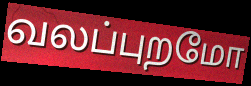
வலப்புறமோ